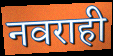
नवराही